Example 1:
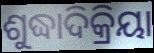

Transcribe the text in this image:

ଶୁଦ୍ଧାଦିକ୍ରିୟା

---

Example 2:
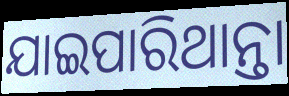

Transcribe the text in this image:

ଯାଇପାରିଥାନ୍ତା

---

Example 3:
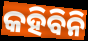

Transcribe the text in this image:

କହିବିନି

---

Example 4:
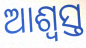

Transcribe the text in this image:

ଆଶ୍ବସ୍ତ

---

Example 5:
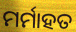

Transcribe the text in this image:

ମର୍ମାହତ